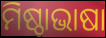
ମିଷ୍ଠାଭାଷା